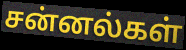
சன்னல்கள்